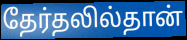
தேர்தலில்தான்